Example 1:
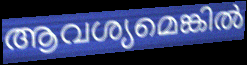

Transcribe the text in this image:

ആവശ്യമെങ്കിൽ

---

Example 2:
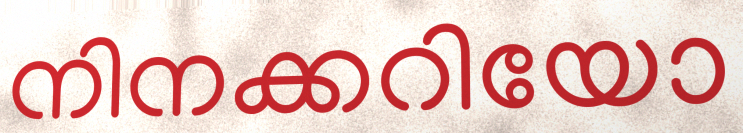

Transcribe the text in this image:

നിനക്കറിയോ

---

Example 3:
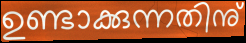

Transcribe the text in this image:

ഉണ്ടാക്കുന്നതിനു്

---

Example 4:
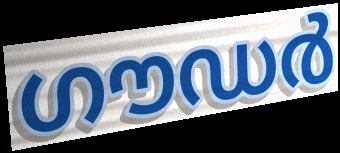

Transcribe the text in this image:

ഗൗഡർ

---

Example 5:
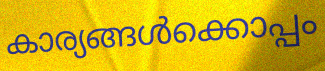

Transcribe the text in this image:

കാര്യങ്ങൾക്കൊപ്പം